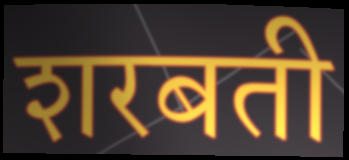
शरबती